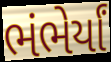
ભંભેર્યાં